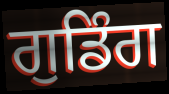
ਗੁਡਿੰਗ